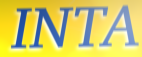
INTA